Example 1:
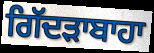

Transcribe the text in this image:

ਗਿੱਦੜਾਬਾਹਾ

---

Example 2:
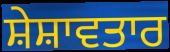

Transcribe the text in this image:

ਸ਼ੇਸ਼ਾਵਤਾਰ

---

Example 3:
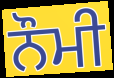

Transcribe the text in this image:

ਨੌਮੀ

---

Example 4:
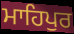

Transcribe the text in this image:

ਮਾਹਿਪੁਰ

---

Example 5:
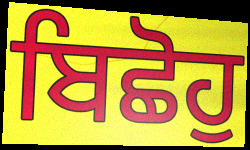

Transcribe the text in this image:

ਬਿਛੋਹੁ